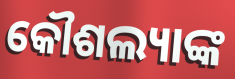
କୌଶଲ୍ୟାଙ୍କ